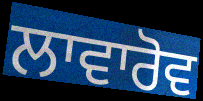
ਲਾਵਾਰੋਵ